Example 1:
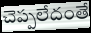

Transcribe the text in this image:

చెప్పలేదంతే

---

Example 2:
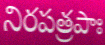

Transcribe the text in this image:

నిరపత్రపాః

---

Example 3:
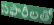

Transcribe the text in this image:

సఫారీలతో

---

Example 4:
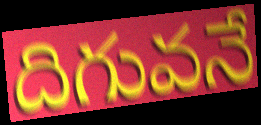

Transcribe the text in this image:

దిగువనే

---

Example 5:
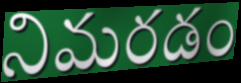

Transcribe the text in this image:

నిమరడం